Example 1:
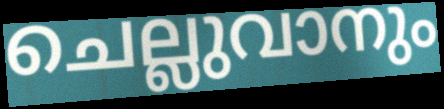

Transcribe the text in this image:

ചെല്ലുവാനും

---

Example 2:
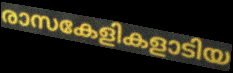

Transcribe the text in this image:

രാസകേളികളാടിയ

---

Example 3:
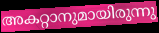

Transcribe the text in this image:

അകറ്റാനുമായിരുന്നു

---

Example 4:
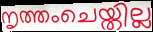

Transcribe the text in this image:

നൃത്തംചെയ്തില്ല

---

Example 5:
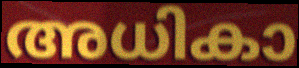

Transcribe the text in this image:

അധികാ